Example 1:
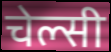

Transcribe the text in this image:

चेल्सी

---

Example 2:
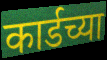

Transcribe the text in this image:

कार्डच्या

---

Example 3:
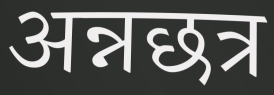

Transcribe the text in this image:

अन्नछत्र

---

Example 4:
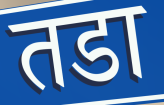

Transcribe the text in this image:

तडा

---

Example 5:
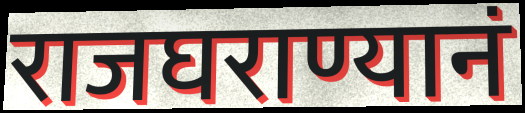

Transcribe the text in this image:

राजघराण्यानं